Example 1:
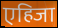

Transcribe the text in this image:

एहिजा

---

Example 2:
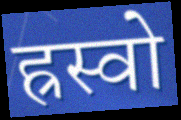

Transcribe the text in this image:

ह्रस्वो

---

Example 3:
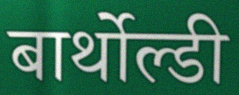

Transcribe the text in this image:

बार्थोल्डी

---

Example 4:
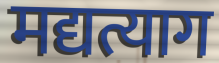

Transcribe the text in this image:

मद्यत्याग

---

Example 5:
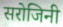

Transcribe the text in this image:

सरोजिनी